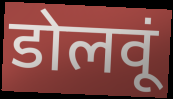
डोलवूं